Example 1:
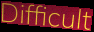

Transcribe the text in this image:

Difficult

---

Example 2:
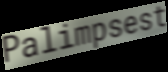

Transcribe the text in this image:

Palimpsest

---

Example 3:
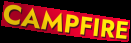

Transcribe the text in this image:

CAMPFIRE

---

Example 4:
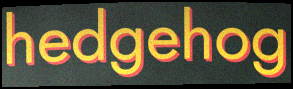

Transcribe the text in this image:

hedgehog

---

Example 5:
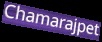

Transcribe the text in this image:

Chamarajpet